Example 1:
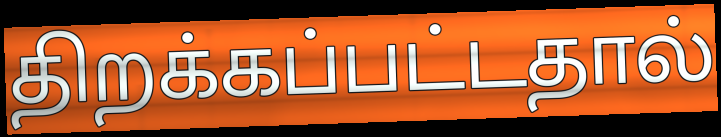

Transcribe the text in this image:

திறக்கப்பட்டதால்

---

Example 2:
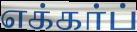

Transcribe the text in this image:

எக்கர்ப்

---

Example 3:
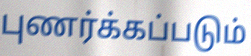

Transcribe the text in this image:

புணர்க்கப்படும்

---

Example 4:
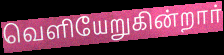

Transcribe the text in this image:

வெளியேறுகின்றார்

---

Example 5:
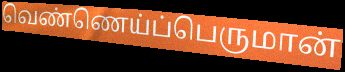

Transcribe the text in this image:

வெண்ணெய்ப்பெருமான்